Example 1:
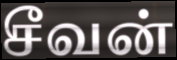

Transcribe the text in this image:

சீவன்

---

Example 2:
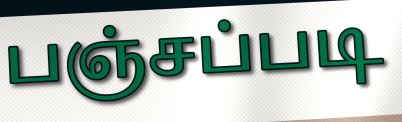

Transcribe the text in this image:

பஞ்சப்படி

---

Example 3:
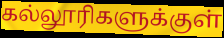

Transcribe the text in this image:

கல்லூரிகளுக்குள்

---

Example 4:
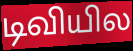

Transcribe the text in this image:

டிவியில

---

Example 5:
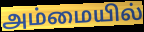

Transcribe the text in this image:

அம்மையில்